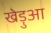
खेड़ुआ